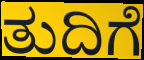
ತುದಿಗೆ